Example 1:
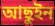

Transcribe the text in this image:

আছুইন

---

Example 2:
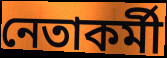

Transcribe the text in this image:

নেতাকর্মী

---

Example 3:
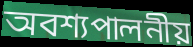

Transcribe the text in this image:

অবশ্যপালনীয়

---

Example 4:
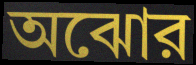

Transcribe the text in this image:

অঝোর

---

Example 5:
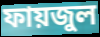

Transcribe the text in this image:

ফায়জুল